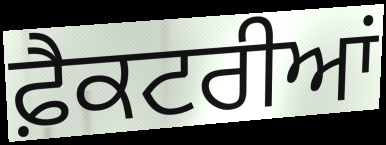
ਫ਼ੈਕਟਰੀਆਂ